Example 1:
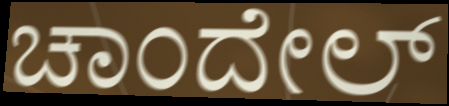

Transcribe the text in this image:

ಚಾಂದೇಲ್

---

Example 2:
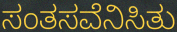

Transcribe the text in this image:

ಸಂತಸವೆನಿಸಿತು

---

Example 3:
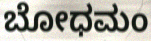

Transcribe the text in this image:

ಬೋಧಮಂ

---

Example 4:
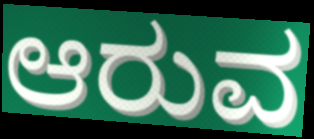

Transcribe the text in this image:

ಆರುವ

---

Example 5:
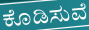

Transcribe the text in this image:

ಕೊಡಿಸುವೆ